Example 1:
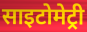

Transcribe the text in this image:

साइटोमेट्री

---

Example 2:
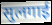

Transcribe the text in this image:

सुलगाई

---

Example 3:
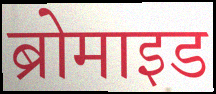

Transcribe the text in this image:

ब्रोमाइड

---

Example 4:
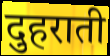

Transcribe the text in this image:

दुहराती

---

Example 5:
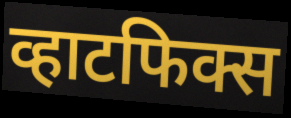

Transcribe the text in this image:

व्हाटफिक्स